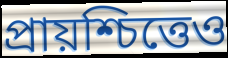
প্রায়শ্চিত্তেও